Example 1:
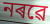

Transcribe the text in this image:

নৰৱে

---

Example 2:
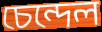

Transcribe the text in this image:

চেন্দেল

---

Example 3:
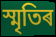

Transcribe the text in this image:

স্মৃতিৰ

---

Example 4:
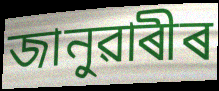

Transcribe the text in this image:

জানুৱাৰীৰ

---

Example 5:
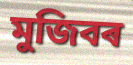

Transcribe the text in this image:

মুজিবৰ